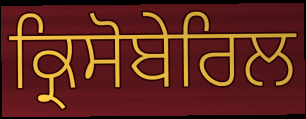
ਕ੍ਰਿਸੋਬੇਰਿਲ